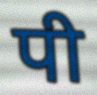
पी